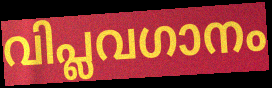
വിപ്ലവഗാനം